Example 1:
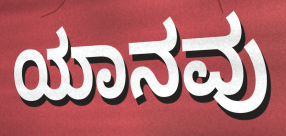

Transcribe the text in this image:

ಯಾನವು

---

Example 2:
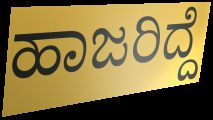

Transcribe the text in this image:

ಹಾಜರಿದ್ದೆ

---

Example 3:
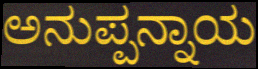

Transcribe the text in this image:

ಅನುಪ್ಪನ್ನಾಯ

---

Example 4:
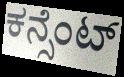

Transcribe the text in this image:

ಕನ್ಸೆಂಟ್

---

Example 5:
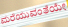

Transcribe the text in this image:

ಮರೆಯುವಂತೆಯೇ